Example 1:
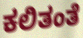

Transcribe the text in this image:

ಕಲಿತಂತೆ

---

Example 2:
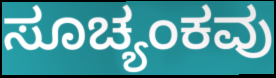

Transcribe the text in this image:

ಸೂಚ್ಯಂಕವು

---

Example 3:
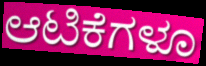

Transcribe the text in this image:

ಆಟಿಕೆಗಳೂ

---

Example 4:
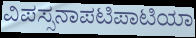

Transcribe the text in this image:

ವಿಪಸ್ಸನಾಪಟಿಪಾಟಿಯಾ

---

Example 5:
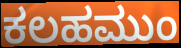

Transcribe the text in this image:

ಕಲಹಮುಂ